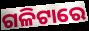
ଗଳିଟାରେ